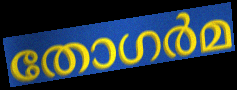
തോഗർമ